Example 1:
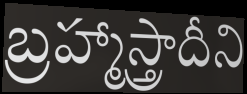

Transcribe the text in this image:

బ్రహ్మాస్త్రాదీని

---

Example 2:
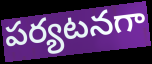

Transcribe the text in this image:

పర్యటనగా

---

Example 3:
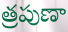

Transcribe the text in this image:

త్రపుణా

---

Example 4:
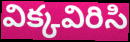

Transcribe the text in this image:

విక్కవిరిసి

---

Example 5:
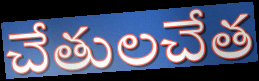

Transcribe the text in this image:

చేతులచేత